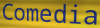
Comedia